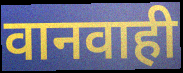
वानवाही